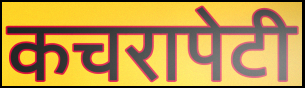
कचरापेटी